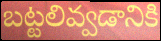
బట్టలివ్వడానికి